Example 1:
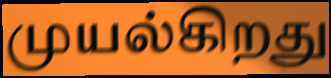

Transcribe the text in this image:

முயல்கிறது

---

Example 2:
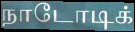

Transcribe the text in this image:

நாடோடிக்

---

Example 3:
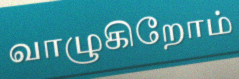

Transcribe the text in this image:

வாழுகிறோம்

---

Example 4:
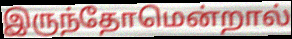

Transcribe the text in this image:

இருந்தோமென்றால்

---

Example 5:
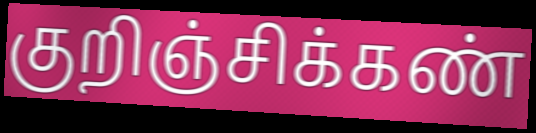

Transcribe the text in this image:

குறிஞ்சிக்கண்